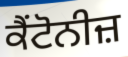
ਕੈਂਟੋਨੀਜ਼